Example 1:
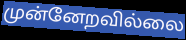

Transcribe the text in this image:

முன்னேறவில்லை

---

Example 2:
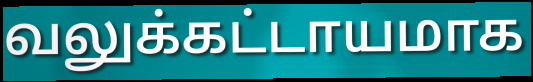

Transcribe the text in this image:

வலுக்கட்டாயமாக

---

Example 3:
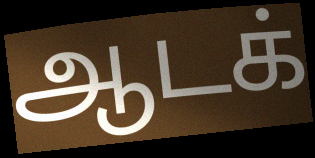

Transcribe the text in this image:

ஆடக்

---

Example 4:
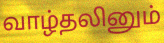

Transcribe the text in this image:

வாழ்தலினும்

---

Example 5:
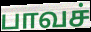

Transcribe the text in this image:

பாவச்